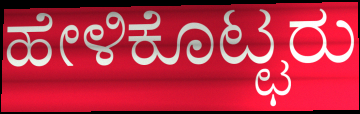
ಹೇಳಿಕೊಟ್ಟರು